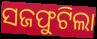
ସଜଫୁଟିଲା